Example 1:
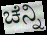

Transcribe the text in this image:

ಚೆನ್ನಿ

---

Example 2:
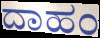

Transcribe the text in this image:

ದಾಹಂ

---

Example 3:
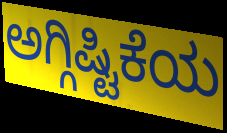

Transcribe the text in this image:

ಅಗ್ಗಿಷ್ಟಿಕೆಯ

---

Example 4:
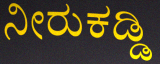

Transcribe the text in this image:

ನೀರುಕಡ್ಡಿ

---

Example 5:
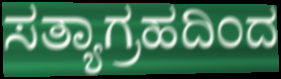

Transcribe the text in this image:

ಸತ್ಯಾಗ್ರಹದಿಂದ